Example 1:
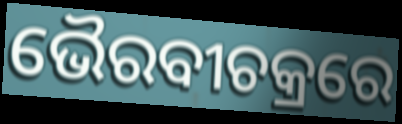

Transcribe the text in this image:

ଭୈରବୀଚକ୍ରରେ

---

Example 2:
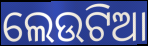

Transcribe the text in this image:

ଲେଉଟିଆ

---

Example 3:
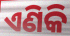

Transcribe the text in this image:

ଏଣିକି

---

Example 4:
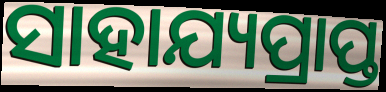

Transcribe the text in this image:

ସାହାଯ୍ୟପ୍ରାପ୍ତ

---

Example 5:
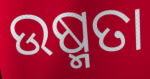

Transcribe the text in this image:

ଉଷ୍ମତା